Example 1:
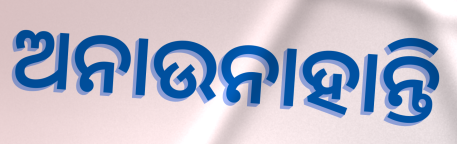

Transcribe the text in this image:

ଅନାଉନାହାନ୍ତି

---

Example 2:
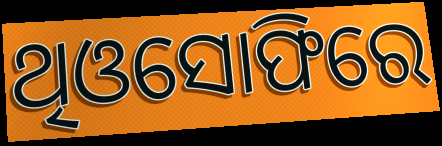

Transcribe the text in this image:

ଥିଓସୋଫିରେ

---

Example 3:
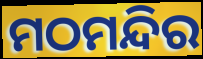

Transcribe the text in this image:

ମଠମନ୍ଦିର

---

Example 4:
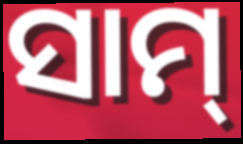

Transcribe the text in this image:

ସାମ୍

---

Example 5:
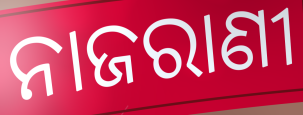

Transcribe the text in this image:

ନାଜରାଣୀ